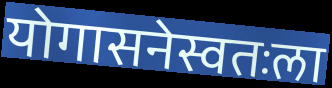
योगासनेस्वतःला